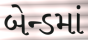
બેન્ડમાં